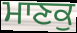
ਮਾਣਕੁ